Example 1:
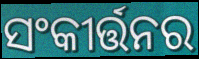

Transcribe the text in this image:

ସଂକୀର୍ତ୍ତନର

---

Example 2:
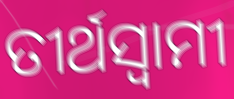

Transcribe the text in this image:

ତୀର୍ଥସ୍ୱାମୀ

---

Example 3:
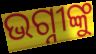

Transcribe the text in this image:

ଭଗ୍ନୀଙ୍କୁ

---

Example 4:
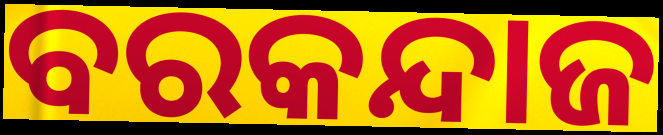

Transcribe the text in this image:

ବରକନ୍ଦାଜ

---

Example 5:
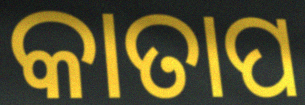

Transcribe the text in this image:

କାତାପ